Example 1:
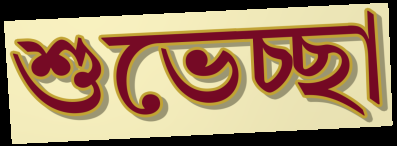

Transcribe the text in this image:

শুভেচ্ছা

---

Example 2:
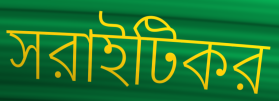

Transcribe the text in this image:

সরাইটিকর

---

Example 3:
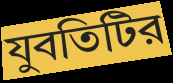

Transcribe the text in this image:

যুবতিটির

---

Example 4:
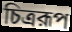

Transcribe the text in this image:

চিত্ররূপ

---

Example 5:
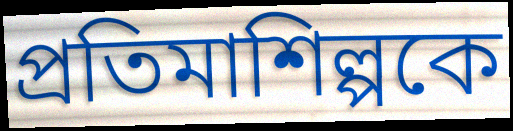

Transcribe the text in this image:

প্রতিমাশিল্পকে